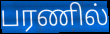
பரணில்